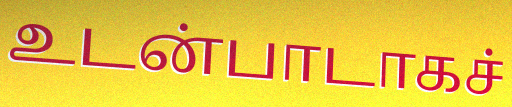
உடன்பாடாகச்